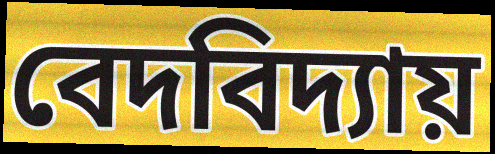
বেদবিদ্যায়